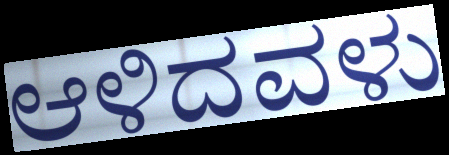
ಆಳಿದವಳು